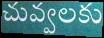
చువ్వలకు